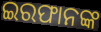
ଇରଫାନଙ୍କ